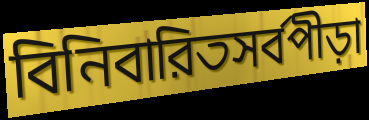
বিনিবারিতসর্বপীড়া